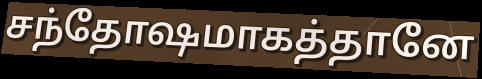
சந்தோஷமாகத்தானே